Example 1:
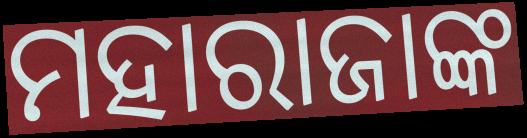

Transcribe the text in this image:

ମହାରାଜାଙ୍କ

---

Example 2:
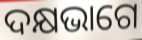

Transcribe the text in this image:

ଦକ୍ଷଭାଗେ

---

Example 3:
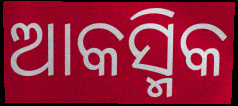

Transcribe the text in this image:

ଆକସ୍ମିକ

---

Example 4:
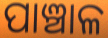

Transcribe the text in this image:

ପାଞ୍ଚାଳ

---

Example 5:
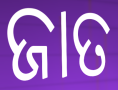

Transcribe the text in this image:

ଜାତ